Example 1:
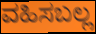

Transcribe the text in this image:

ವಹಿಸಬಲ್ಲ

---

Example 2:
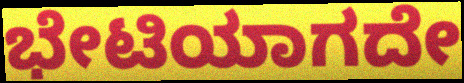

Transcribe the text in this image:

ಭೇಟಿಯಾಗದೇ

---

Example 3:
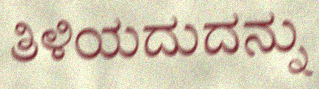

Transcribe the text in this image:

ತಿಳಿಯದುದನ್ನು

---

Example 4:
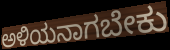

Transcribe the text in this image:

ಅಳಿಯನಾಗಬೇಕು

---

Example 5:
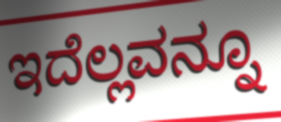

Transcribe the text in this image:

ಇದೆಲ್ಲವನ್ನೂ